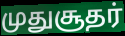
முதுசூதர்